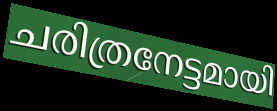
ചരിത്രനേട്ടമായി